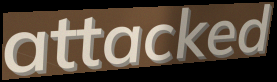
attacked